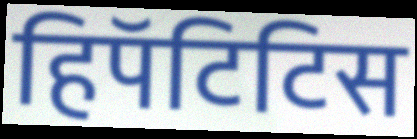
हिपॅटिटिस